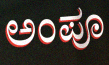
ಅಂಪೂ